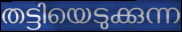
തട്ടിയെടുക്കുന്ന